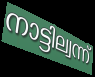
നാട്ടില്വന്ന്